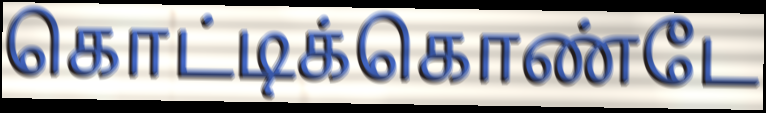
கொட்டிக்கொண்டே